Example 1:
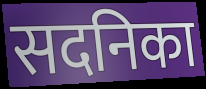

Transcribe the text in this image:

सदनिका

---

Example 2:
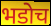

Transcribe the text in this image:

भडोच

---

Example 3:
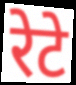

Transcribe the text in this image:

रेटे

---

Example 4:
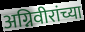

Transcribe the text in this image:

अग्निवीरांच्या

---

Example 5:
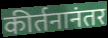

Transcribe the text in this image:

कीर्तनानंतर